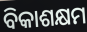
ବିକାଶକ୍ଷମ